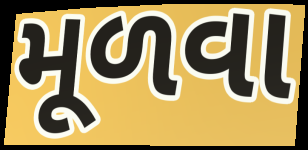
મૂળવા